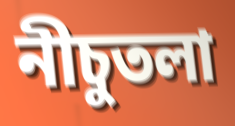
নীচুতলা